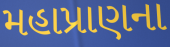
મહાપ્રાણના